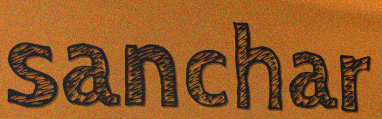
sanchar